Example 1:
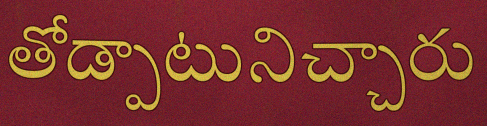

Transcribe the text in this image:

తోడ్పాటునిచ్చారు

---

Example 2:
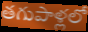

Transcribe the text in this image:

తగుపాళ్లలో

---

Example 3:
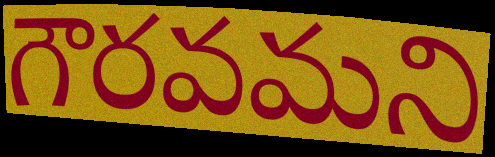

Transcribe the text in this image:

గౌరవమని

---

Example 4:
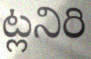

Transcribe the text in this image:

ట్లనిరి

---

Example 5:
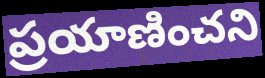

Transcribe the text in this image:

ప్రయాణించని